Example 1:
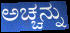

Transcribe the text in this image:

ಅಚ್ಚನ್ನು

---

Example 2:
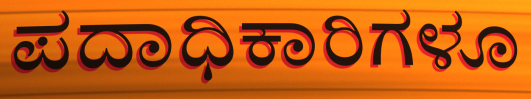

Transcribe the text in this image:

ಪದಾಧಿಕಾರಿಗಳೂ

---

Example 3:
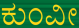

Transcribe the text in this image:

ಕುಂವೀ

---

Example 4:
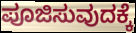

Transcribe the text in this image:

ಪೂಜಿಸುವುದಕ್ಕೆ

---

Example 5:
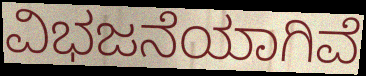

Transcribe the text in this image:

ವಿಭಜನೆಯಾಗಿವೆ